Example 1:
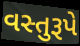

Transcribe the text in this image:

વસ્તુરૂપે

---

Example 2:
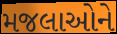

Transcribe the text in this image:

મજલાઓને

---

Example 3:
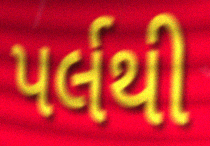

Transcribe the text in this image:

પર્લથી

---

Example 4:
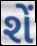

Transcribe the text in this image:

શેં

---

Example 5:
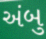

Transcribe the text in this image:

અંબુ